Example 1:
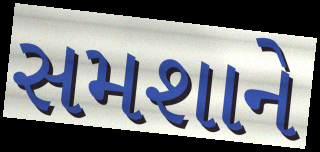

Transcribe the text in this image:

સમશાને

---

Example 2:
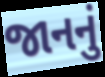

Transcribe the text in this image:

જાનનું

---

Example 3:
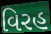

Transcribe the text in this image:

વિરહ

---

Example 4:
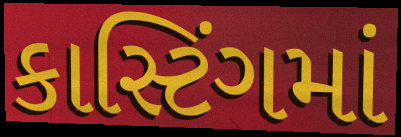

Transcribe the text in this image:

કાસ્ટિંગમાં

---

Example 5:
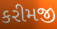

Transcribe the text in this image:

કરીમજી